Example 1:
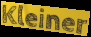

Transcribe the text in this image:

Kleiner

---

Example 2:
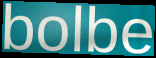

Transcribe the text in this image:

bolbe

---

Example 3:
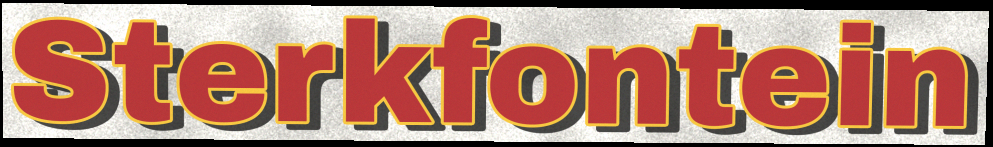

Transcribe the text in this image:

Sterkfontein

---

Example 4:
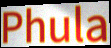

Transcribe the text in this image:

Phula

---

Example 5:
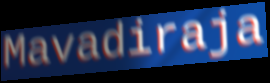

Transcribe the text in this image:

Mavadiraja